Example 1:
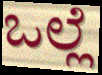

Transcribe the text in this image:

ಒಲ್ಲೆ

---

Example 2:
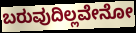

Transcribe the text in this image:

ಬರುವುದಿಲ್ಲವೇನೋ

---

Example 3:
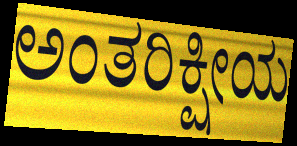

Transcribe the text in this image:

ಅಂತರಿಕ್ಷೀಯ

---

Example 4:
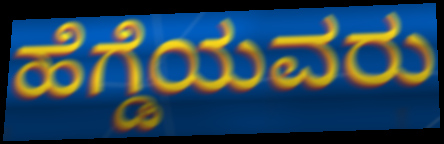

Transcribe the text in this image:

ಹೆಗ್ಡೆಯವರು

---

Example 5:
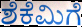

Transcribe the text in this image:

ಶೆಕೆಮಿಗೆ